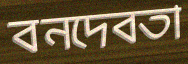
বনদেবতা